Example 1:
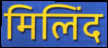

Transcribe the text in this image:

मिलिंद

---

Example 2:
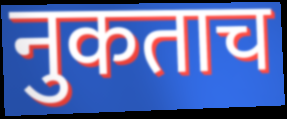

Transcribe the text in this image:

नुकताच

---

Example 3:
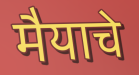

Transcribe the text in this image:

मैयाचे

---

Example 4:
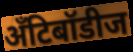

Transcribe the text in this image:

अँटिबॉडीज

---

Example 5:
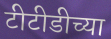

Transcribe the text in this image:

टीटीडीच्या